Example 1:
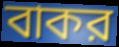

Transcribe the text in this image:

বাকর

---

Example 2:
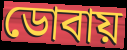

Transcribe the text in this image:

ডোবায়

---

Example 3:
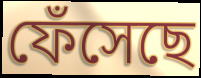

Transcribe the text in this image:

ফেঁসেছে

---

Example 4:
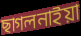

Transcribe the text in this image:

ছাগলনাইয়া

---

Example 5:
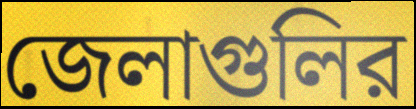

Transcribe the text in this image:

জেলাগুলির